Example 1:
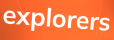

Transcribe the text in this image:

explorers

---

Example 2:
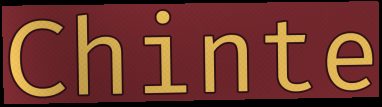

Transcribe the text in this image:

Chinte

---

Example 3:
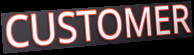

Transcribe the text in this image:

CUSTOMER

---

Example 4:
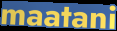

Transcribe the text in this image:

maatani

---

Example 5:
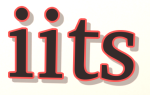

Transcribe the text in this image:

iits